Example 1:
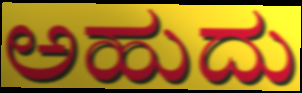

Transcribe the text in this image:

ಅಹುದು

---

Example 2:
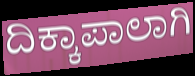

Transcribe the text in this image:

ದಿಕ್ಕಾಪಾಲಾಗಿ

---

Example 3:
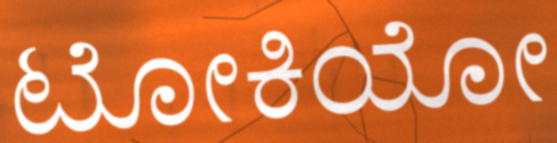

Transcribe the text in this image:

ಟೋಕಿಯೋ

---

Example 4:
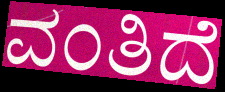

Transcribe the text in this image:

ವಂತಿದೆ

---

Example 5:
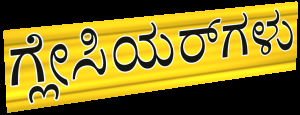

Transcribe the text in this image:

ಗ್ಲೇಸಿಯರ್‌ಗಳು